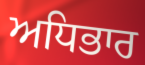
ਅਧਿਭਾਰ